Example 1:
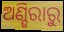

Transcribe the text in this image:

ଅଣ୍ଡିରାରୁ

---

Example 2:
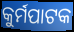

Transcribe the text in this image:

କୁର୍ମପାଟକ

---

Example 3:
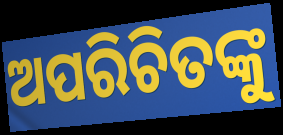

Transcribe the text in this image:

ଅପରିଚିତଙ୍କୁ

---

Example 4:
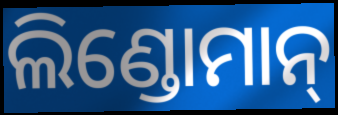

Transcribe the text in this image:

ଲିଣ୍ଡୋମାନ୍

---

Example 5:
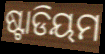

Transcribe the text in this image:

ଷ୍ଟାଡିୟମ